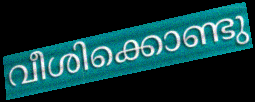
വീശിക്കൊണ്ടു